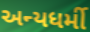
અન્યધર્મી